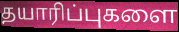
தயாரிப்புகளை